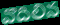
వొదిలిన